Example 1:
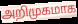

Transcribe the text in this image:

அறிமுகமாக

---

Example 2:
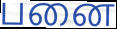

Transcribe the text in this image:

பனை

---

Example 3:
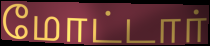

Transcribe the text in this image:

மோட்டார்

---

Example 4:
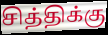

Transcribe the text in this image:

சித்திக்கு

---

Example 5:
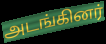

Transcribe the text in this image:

அடங்கினர்